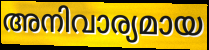
അനിവാര്യമായ